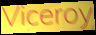
Viceroy